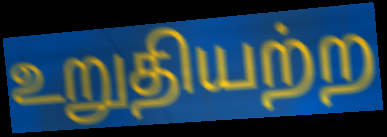
உறுதியற்ற